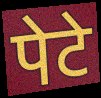
पेटे